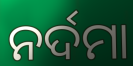
ନର୍ଦମା